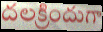
దలక్రిందుగా